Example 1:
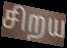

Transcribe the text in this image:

சிறய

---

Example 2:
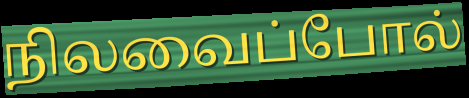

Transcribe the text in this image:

நிலவைப்போல்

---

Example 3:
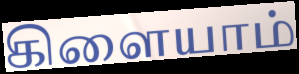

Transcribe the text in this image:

கிளையாம்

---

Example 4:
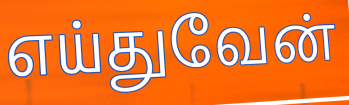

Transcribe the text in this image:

எய்துவேன்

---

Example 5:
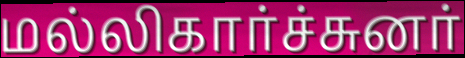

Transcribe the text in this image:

மல்லிகார்ச்சுனர்